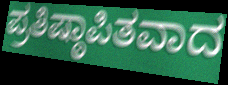
ಪ್ರತಿಷ್ಠಾಪಿತವಾದ